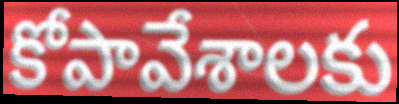
కోపావేశాలకు